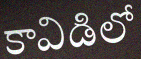
కావిడిలో